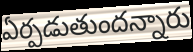
ఏర్పడుతుందన్నారు